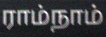
ராம்நாம்